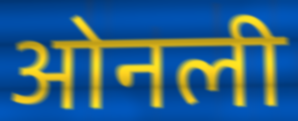
ओनली